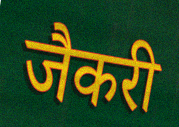
जैकरी